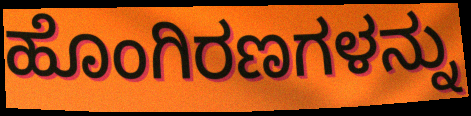
ಹೊಂಗಿರಣಗಳನ್ನು